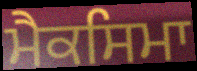
ਮੈਕਸਿਮਾ